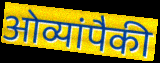
ओव्यांपैकी